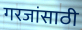
गरजांसाठी